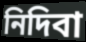
নিদিবা